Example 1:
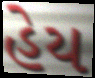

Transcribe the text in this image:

હેય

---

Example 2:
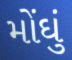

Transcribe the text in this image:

મોંઘું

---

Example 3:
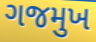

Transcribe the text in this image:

ગજમુખ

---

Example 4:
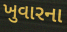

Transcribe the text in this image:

ખુવારના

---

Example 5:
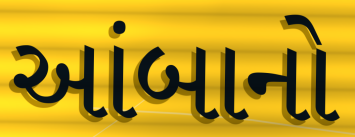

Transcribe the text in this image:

આંબાનો